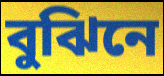
বুঝিনে